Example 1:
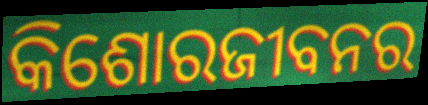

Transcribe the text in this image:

କିଶୋରଜୀବନର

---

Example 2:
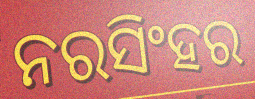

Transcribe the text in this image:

ନରସିଂହର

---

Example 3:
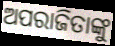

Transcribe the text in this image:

ଅପରାଜିତାଙ୍କୁ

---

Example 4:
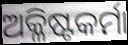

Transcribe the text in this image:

ଅକ୍ଳିଷ୍ଟକର୍ମା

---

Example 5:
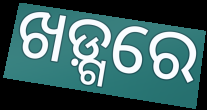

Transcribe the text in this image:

ଖଡ଼୍ଗରେ